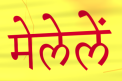
मेलेलें